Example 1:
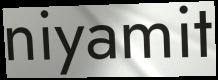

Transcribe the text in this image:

niyamit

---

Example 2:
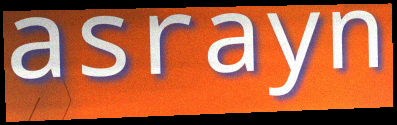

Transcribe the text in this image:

asrayn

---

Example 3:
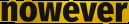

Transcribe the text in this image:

nowever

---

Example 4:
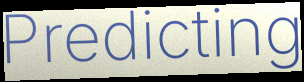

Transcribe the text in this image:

Predicting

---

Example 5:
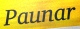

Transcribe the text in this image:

Paunar